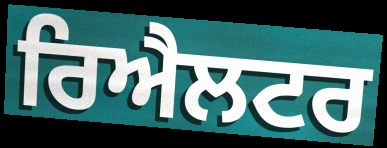
ਰਿਐਲਟਰ